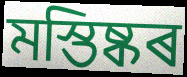
মস্তিষ্কৰ